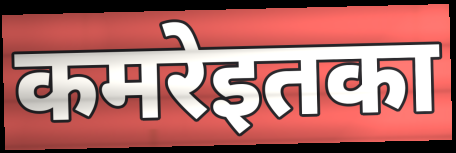
कमरेइतका